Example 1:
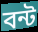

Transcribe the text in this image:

বন্ট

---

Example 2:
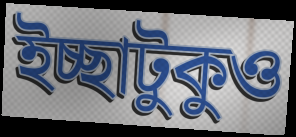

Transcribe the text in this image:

ইচ্ছাটুকুও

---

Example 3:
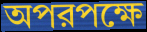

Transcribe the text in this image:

অপরপক্ষে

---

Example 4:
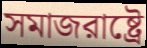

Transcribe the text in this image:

সমাজরাষ্ট্রে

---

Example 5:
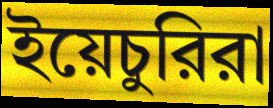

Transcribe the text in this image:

ইয়েচুরিরা